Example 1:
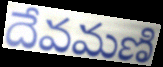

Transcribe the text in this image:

దేవమణి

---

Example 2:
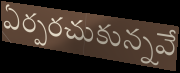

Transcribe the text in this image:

ఏర్పరచుకున్నవే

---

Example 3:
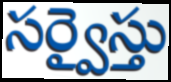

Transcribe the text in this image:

సర్వైస్తు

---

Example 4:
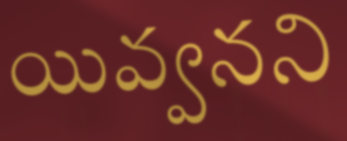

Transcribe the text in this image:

యివ్వనని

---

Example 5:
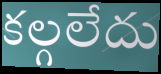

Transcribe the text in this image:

కల్గలేదు